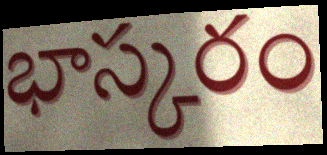
భాస్కరం